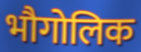
भौगोलिक